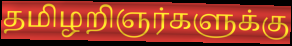
தமிழறிஞர்களுக்கு